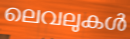
ലെവലുകൾ